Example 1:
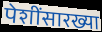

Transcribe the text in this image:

पेशींसारख्या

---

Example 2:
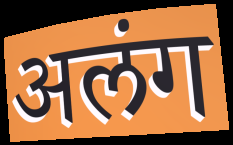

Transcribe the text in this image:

अलंग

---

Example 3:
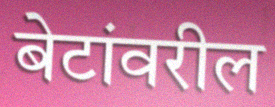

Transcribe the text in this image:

बेटांवरील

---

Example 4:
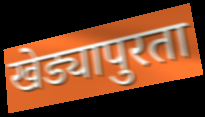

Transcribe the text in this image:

खेड्यापुरता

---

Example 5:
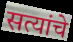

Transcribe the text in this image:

सत्यांचे